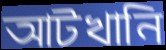
আটখানি